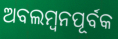
ଅବଲମ୍ୱନପୂର୍ବକ